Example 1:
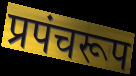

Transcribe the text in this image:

प्रपंचरूप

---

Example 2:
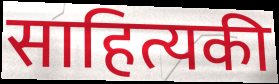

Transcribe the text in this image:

साहित्यकी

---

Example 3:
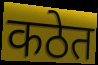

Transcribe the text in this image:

कठेत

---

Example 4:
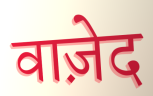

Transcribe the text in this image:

वाज़ेद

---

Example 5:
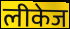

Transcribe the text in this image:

लीकेज